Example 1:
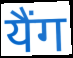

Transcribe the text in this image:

यैंग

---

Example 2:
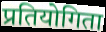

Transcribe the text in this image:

प्रतियोगिता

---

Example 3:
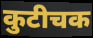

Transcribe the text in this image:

कुटीचक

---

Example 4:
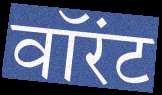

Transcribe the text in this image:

वॉरंट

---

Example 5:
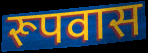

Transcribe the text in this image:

रूपवास